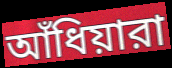
আঁধিয়ারা